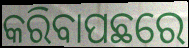
କରିବାପଛରେ